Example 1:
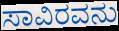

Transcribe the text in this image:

ಸಾವಿರವನು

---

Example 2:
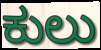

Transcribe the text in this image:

ಕುಲು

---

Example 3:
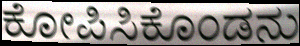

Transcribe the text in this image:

ಕೋಪಿಸಿಕೊಂಡನು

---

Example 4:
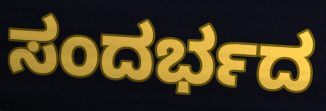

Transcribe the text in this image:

ಸಂದರ್ಭದ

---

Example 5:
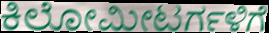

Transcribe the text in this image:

ಕಿಲೋಮೀಟರ್ಗಳಿಗೆ